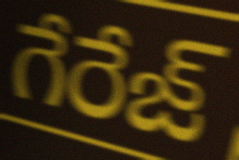
గేరేజ్